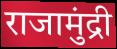
राजामुंद्री